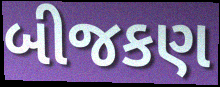
બીજકણ